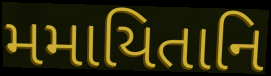
મમાયિતાનિ